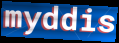
myddis